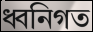
ধ্বনিগত